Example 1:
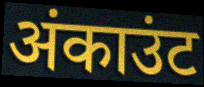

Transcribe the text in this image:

अंकाउंट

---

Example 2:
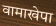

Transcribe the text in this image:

वामाखेपा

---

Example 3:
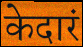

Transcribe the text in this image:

केदारं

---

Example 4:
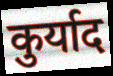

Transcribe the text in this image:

कुर्याद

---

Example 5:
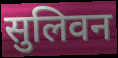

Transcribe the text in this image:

सुलिवन